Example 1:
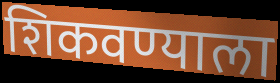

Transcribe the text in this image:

शिकवण्याला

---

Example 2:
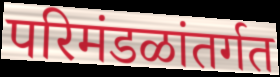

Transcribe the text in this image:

परिमंडळांतर्गत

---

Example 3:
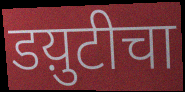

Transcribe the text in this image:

डय़ुटीचा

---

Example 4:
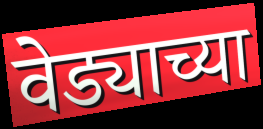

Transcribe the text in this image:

वेड्याच्या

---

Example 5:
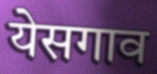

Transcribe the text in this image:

येसगाव